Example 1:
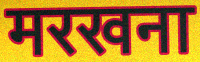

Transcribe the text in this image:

मरखना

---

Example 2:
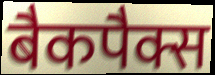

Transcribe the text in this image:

बैकपैक्स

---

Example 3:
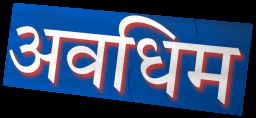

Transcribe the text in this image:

अवधिम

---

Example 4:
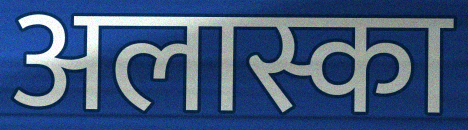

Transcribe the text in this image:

अलास्का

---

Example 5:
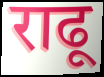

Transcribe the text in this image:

राढू